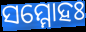
ସମ୍ମୋହଃ